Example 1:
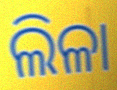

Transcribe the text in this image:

ଲିଳା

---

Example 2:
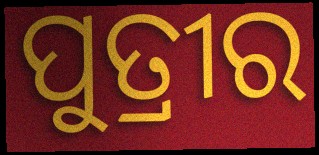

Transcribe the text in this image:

ପୁତ୍ରୀର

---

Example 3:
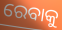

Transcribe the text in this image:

ରେବାକୁ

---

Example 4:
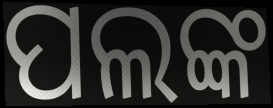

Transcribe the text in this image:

ପଲଙ୍କ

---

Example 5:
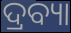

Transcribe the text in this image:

ଦ୍ରବ୍ୟା